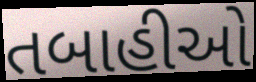
તબાહીઓ